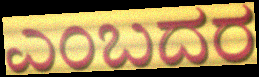
ಎಂಬದರ